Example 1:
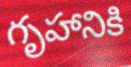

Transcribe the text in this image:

గృహానికి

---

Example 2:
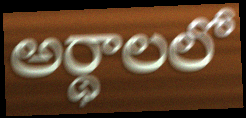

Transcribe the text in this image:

అర్థాలలో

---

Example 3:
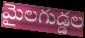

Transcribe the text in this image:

మైలగుడ్డల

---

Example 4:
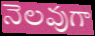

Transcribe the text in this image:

నెలవుగా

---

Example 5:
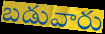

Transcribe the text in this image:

బడువారు